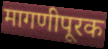
मागणीपूरक